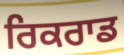
ਰਿਕਰਾਡ